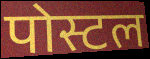
पोस्टल